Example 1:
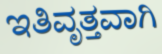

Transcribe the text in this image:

ಇತಿವೃತ್ತವಾಗಿ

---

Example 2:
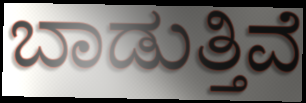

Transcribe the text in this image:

ಬಾಡುತ್ತಿವೆ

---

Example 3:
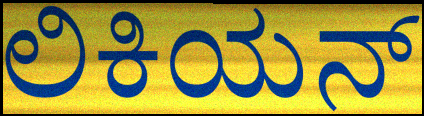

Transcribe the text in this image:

ಲಿಕಿಯನ್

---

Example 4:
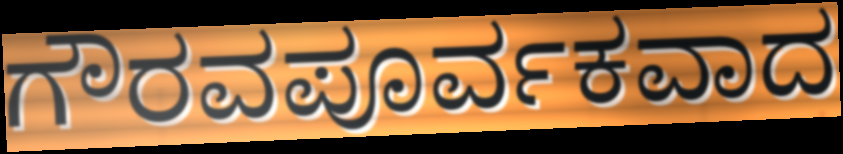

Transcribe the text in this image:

ಗೌರವಪೂರ್ವಕವಾದ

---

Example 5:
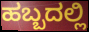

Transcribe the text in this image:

ಹಬ್ಬದಲ್ಲಿ